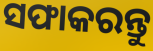
ସଫାକରନ୍ତୁ